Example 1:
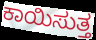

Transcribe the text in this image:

ಕಾಯಿಸುತ್ತ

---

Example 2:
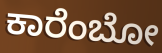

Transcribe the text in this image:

ಕಾರೆಂಬೋ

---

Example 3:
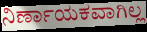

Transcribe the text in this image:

ನಿರ್ಣಾಯಕವಾಗಿಲ್ಲ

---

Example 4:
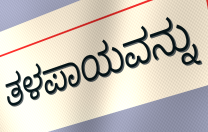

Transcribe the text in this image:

ತಳಪಾಯವನ್ನು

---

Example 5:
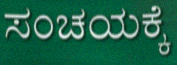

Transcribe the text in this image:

ಸಂಚಯಕ್ಕೆ